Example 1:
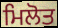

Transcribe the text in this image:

ਮਿਲੋਤ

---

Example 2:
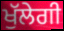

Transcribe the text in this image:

ਖੁੱਲੇਗੀ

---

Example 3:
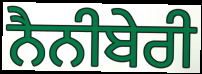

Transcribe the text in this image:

ਨੈਨੀਬੇਰੀ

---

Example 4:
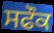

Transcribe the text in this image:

ਸਫੌਕ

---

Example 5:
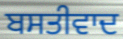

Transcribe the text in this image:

ਬਸਤੀਵਾਦ